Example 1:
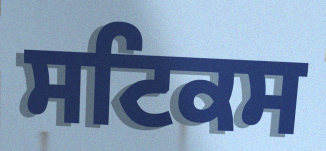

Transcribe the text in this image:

ਸਟਿਕਸ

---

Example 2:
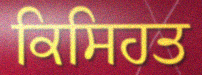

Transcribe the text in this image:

ਕਿਸਿਹਤ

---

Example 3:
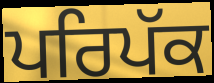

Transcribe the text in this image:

ਪਰਿਪੱਕ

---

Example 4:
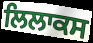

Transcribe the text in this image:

ਲਿਲਾਕਸ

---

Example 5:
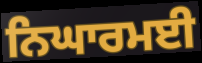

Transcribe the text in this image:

ਨਿਘਾਰਮਈ